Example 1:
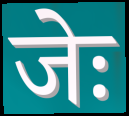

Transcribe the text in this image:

जेः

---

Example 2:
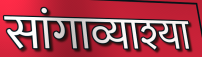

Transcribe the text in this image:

सांगाव्याश्या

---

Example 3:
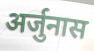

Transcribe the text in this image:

अर्जुनास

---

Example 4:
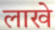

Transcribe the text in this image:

लाखे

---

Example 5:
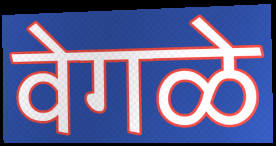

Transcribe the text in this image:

वेगळे